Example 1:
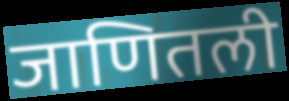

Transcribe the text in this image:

जाणितली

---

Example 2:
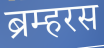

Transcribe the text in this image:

ब्रम्हरस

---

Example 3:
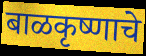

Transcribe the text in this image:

बाळकृष्णाचे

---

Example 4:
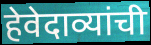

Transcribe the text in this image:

हेवेदाव्यांची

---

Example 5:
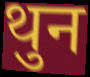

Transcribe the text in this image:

थुन